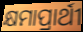
କ୍ଷମାପ୍ରାର୍ଥୀ